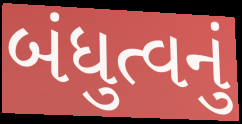
બંધુત્વનું